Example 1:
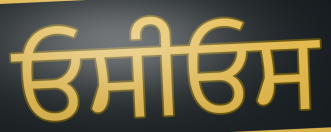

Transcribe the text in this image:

ਓਸੀਓਸ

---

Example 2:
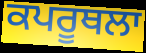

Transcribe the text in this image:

ਕਪਰੂਥਲਾ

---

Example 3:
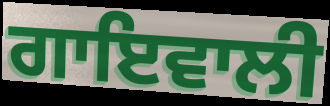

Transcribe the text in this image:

ਗਾਇਵਾਲੀ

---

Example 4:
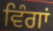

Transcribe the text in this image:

ਵਿੰਗਾਂ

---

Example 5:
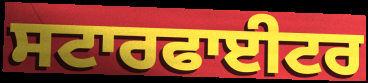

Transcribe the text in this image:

ਸਟਾਰਫਾਈਟਰ